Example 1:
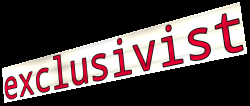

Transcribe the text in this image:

exclusivist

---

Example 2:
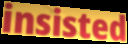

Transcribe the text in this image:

insisted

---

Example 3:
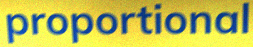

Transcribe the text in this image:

proportional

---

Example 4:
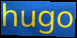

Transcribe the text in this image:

hugo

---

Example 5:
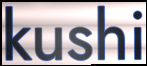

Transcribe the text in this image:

kushi